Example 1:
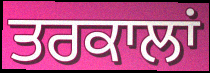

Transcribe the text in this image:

ਤਰਕਾਲਾਂ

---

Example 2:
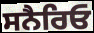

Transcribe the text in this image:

ਸਨੈਰਿਓ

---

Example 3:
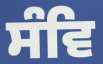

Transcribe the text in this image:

ਸੰਵਿ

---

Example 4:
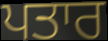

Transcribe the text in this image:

ਪਤਾਰ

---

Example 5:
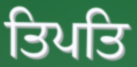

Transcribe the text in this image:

ਤਿਪਤਿ